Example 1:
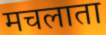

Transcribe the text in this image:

मचलाता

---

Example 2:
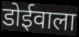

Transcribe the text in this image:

डोईवाला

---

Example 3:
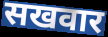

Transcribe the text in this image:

सखवार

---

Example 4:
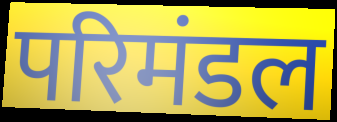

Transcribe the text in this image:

परिमंडल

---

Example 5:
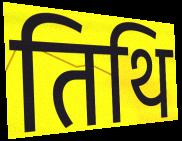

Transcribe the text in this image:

तिथि